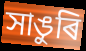
সাঙুৰি